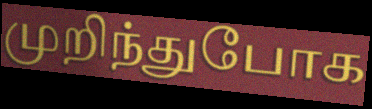
முறிந்துபோக